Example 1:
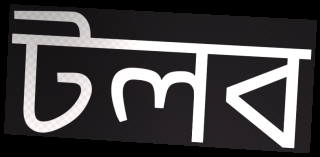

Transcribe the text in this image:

টলব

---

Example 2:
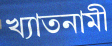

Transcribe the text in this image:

খ্যাতনামী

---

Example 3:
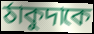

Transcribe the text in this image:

ঠাকুদাকে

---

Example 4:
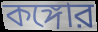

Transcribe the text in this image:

কঙ্গোর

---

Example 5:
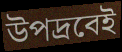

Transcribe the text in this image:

উপদ্রবেই